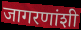
जागरणांशी